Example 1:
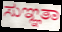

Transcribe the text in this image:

ಸುಞ್ಞತಾ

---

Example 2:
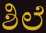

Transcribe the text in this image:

ಶಿಲೆ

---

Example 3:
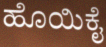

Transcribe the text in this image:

ಹೊಯಿಕೈ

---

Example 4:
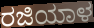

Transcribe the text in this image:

ರಜಿಯಾಳ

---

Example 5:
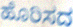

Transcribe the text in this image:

ಹೊರಿಸದ